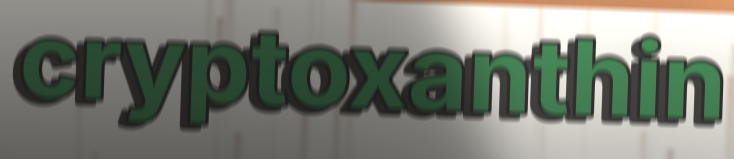
cryptoxanthin